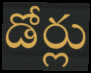
డోర్లు